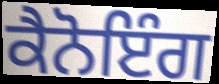
ਕੈਨੋਇੰਗ